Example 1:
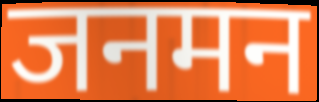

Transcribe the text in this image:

जनमन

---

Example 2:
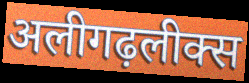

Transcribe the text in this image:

अलीगढ़लीक्स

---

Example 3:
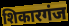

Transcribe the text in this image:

शिकारगंज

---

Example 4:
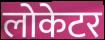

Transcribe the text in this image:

लोकेटर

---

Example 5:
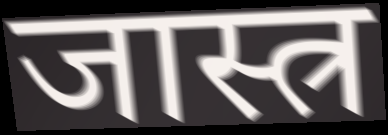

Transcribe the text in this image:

जास्त्र